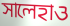
সালেহাও